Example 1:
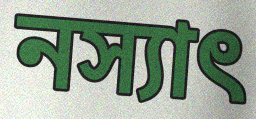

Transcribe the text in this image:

নস্যাৎ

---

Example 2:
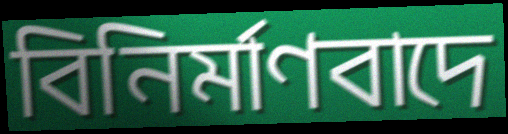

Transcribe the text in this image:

বিনিৰ্মাণবাদে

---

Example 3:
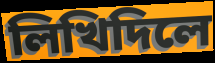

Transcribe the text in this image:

লিখিদিলে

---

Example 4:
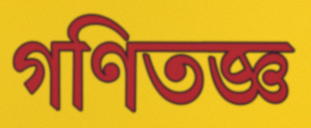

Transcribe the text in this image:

গণিতজ্ঞ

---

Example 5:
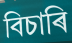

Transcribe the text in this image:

বিচাৰি